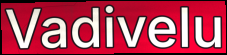
Vadivelu